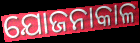
ଯୋଜନାକାଳ